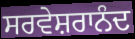
ਸਰਵੇਸ਼ਰਾਨੰਦ